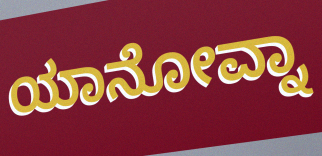
ಯಾನೋವ್ನಾ